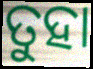
ତୁହା